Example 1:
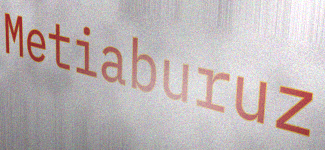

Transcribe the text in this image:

Metiaburuz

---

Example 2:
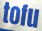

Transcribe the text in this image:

tofu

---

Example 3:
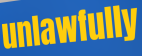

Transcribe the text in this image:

unlawfully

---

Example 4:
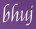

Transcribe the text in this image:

bhuj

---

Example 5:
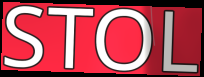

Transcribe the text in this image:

STOL